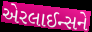
એરલાઈન્સને